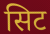
सिट